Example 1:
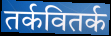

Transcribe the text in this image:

तर्कवितर्क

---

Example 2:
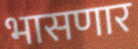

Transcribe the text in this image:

भासणार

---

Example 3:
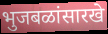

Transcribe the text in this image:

भुजबळांसारखे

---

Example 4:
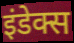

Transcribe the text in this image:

इंडेक्स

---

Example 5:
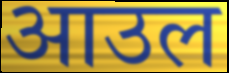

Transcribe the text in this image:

आउल